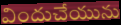
విందుచేయును